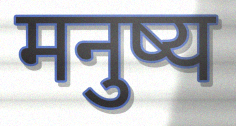
मनुष्‍य